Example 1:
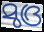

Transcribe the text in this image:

മുദ്ര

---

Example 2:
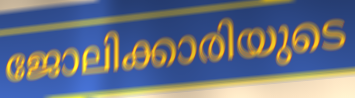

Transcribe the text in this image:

ജോലിക്കാരിയുടെ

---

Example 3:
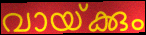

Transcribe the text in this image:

വായ്‌ക്കും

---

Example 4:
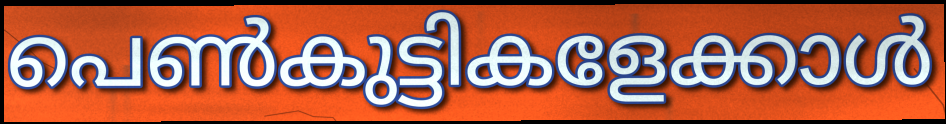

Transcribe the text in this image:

പെൺകുട്ടികളേക്കാൾ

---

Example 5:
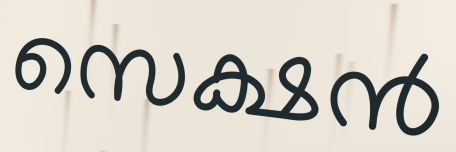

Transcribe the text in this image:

സെക്ഷൻ